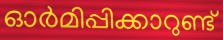
ഓർമിപ്പിക്കാറുണ്ട്